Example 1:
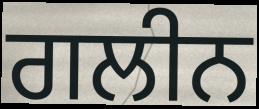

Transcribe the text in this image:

ਗਲੀਨ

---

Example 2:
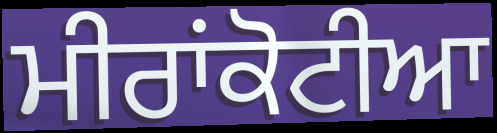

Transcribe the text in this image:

ਮੀਰਾਂਕੋਟੀਆ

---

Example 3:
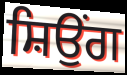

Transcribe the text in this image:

ਸ਼ਿਉਂਗ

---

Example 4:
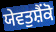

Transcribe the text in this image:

ਯੇਵਤੁਸ਼ੈਂਕੋ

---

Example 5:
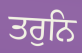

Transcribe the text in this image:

ਤਰੁਨਿ